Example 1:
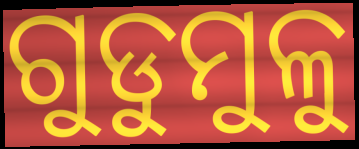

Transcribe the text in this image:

ଗୁଡୁମୁଳୁ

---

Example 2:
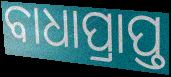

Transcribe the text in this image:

ବାଧାପ୍ରାପ୍ତ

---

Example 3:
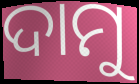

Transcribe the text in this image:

ଦାମୁ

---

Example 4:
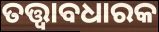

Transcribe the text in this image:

ତତ୍ତ୍ୱାବଧାରକ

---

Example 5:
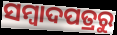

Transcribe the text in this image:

ସମ୍ବାଦପତ୍ରରୁ